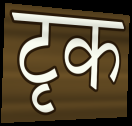
टृक